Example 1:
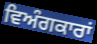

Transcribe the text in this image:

ਵਿਅੰਗਕਾਰਾਂ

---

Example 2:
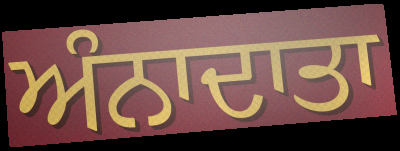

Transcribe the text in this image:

ਅੰਨਾਦਾਤਾ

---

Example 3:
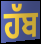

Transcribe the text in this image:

ਹੱਬ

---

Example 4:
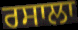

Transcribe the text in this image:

ਰਸਾਲਾ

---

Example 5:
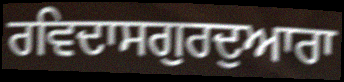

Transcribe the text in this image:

ਰਵਿਦਾਸਗੁਰਦੁਆਰਾ